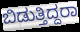
ಬಿಡುತ್ತಿದ್ದರಾ